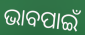
ଭାବପାଇଁ